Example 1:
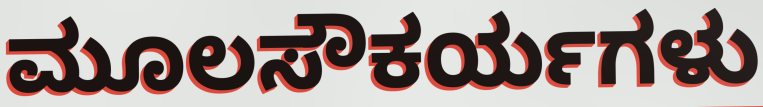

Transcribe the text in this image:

ಮೂಲಸೌಕರ್ಯಗಳು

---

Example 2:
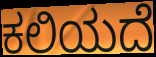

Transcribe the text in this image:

ಕಲಿಯದೆ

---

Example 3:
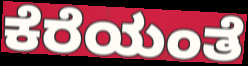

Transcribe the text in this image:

ಕೆರೆಯಂತೆ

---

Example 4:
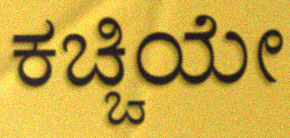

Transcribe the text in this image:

ಕಚ್ಚಿಯೇ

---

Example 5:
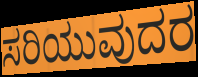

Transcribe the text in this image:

ಸರಿಯುವುದರ